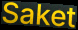
Saket